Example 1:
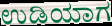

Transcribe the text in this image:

ಉಡಿಯಾಗ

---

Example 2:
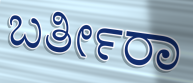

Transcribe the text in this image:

ಬರ್ತೀರಾ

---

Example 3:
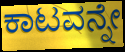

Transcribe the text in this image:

ಕಾಟವನ್ನೇ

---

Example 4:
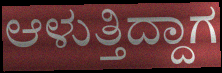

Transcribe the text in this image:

ಆಳುತ್ತಿದ್ದಾಗ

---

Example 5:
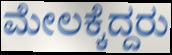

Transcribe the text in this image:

ಮೇಲಕ್ಕೆದ್ದರು